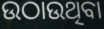
ଉଠାଉଥିବା